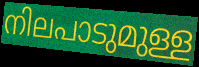
നിലപാടുമുള്ള